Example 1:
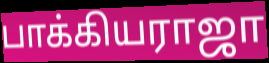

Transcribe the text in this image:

பாக்கியராஜா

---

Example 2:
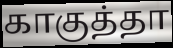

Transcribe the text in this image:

காகுத்தா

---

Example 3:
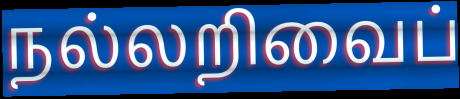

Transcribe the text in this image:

நல்லறிவைப்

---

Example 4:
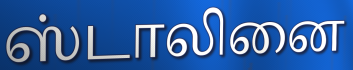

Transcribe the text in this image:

ஸ்டாலினை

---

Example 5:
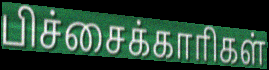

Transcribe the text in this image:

பிச்சைக்காரிகள்